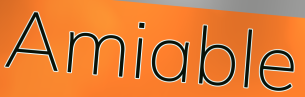
Amiable